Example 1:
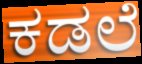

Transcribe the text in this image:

ಕಡಲೆ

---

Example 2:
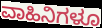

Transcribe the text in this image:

ವಾಹಿನಿಗಳೂ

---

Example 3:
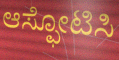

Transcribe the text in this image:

ಆಸ್ಫೋಟಿಸಿ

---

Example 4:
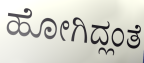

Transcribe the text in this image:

ಹೋಗಿದ್ಲಂತೆ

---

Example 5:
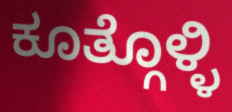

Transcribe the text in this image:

ಕೂತ್ಗೊಳ್ಳಿ